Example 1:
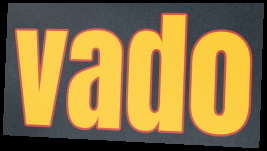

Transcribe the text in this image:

vado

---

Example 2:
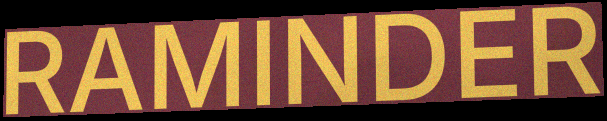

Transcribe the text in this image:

RAMINDER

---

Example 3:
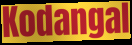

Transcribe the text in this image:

Kodangal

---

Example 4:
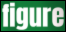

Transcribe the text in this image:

figure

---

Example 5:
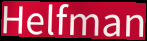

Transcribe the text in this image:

Helfman